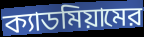
ক্যাডমিয়ামের